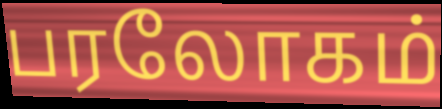
பரலோகம்